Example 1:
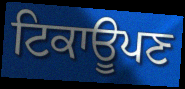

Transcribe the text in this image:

ਟਿਕਾਊਪਣ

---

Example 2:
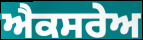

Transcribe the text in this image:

ਐਕਸਰੇਅ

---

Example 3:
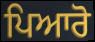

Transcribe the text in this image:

ਪਿਆਰੋ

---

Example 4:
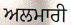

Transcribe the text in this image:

ਅਲਮਾਰੀ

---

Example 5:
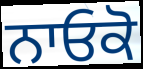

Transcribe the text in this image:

ਨਾਓਕੋ